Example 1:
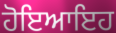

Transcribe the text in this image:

ਹੋਇਆਇਹ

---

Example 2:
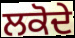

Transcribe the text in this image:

ਲਕੋਦੇ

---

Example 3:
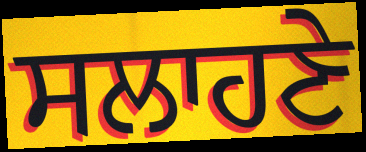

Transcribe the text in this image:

ਸਲਾਹਣੇ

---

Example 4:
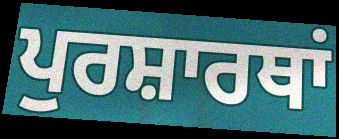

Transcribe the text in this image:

ਪੁਰਸ਼ਾਰਥਾਂ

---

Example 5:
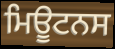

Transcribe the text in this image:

ਮਿਊਟਨਸ